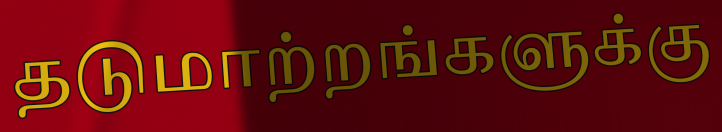
தடுமாற்றங்களுக்கு